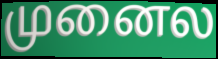
முனைல